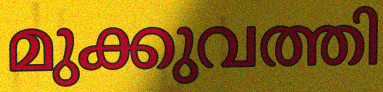
മുക്കുവത്തി